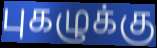
புகழுக்கு